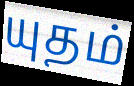
யுதம்